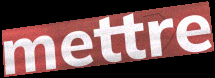
mettre